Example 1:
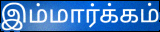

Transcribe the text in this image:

இம்மார்க்கம்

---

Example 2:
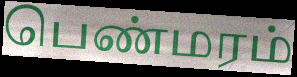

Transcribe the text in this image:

பெண்மரம்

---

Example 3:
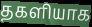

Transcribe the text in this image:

தகளியாக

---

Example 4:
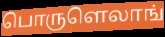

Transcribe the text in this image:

பொருளெலாங்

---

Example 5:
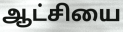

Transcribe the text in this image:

ஆட்சியை